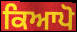
ਕਿਆਪੋ